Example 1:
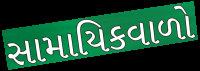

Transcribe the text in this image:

સામાયિકવાળો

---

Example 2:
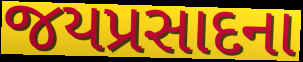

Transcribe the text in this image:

જયપ્રસાદના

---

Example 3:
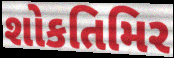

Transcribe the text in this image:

શોકતિમિર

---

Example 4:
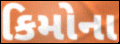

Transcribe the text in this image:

કિમોના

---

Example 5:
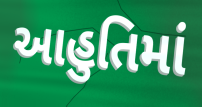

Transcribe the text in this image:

આહુતિમાં